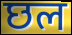
छल